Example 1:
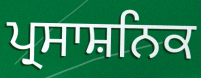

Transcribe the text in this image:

ਪ੍ਰਸਾਸ਼ਨਿਕ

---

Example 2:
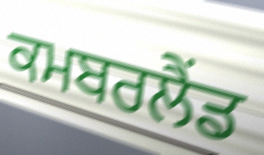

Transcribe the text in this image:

ਕਮਬਰਲੈਂਡ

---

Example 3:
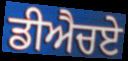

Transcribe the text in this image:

ਡੀਐਚਏ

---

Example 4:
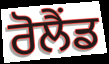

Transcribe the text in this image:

ਰੋਲੈਂਡ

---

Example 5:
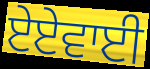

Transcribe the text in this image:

ਏਏਵਾਈ